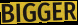
BIGGER